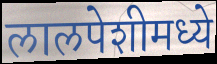
लालपेशीमध्ये